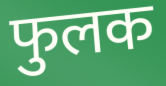
फुलक